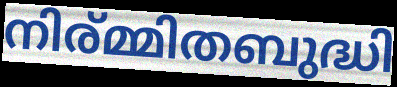
നിര്മ്മിതബുദ്ധി